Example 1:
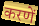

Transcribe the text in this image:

करणें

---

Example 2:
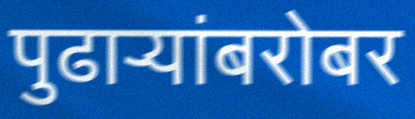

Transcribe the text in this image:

पुढाऱ्यांबरोबर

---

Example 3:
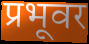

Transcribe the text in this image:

प्रभूवर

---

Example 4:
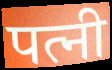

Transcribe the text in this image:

पत्‍नी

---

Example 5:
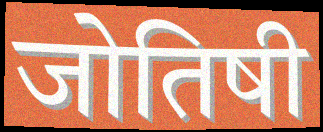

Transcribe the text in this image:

जोतिषी